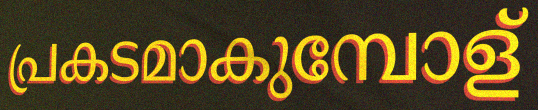
പ്രകടമാകുമ്പോള്